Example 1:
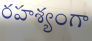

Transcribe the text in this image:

రహశ్యంగా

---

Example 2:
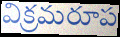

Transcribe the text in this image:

విక్రమరూప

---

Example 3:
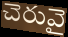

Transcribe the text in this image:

చెరువై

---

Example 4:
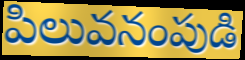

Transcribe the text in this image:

పిలువనంపుడి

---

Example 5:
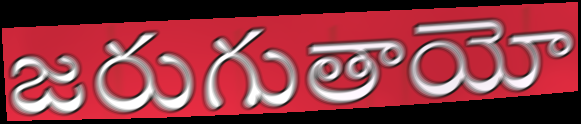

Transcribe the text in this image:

జరుగుతాయో